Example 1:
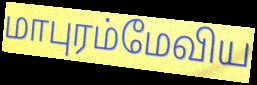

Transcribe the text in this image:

மாபுரம்மேவிய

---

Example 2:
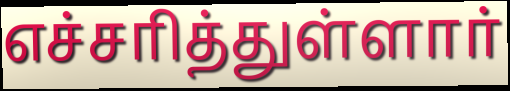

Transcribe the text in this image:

எச்சரித்துள்ளார்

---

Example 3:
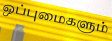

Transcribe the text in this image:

ஒப்புமைகளும்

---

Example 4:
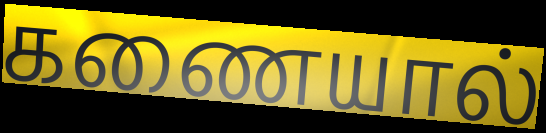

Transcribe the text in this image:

கணையால்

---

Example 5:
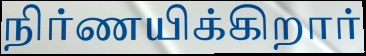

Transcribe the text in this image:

நிர்ணயிக்கிறார்